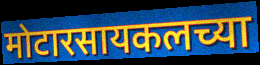
मोटारसायकलच्या